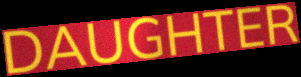
DAUGHTER